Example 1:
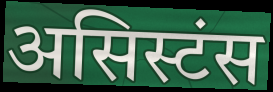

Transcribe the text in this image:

असिस्टंस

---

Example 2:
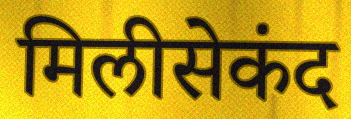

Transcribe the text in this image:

मिलीसेकंद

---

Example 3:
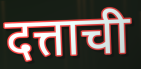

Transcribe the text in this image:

दत्ताची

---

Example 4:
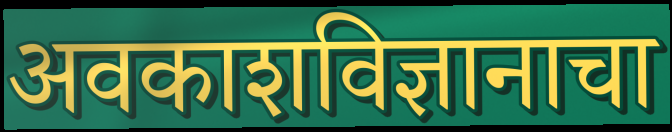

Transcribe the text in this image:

अवकाशविज्ञानाचा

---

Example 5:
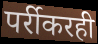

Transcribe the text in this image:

पर्रीकरही